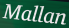
Mallan